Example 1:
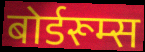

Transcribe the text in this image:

बोर्डरूम्स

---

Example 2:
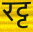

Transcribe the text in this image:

रट्ट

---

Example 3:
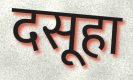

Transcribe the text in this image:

दसूहा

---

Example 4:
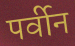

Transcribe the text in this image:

पर्वीन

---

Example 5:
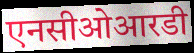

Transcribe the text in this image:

एनसीओआरडी